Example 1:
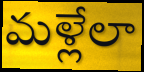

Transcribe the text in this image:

మళ్లేలా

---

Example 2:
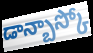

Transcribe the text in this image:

డాన్బాస్కో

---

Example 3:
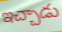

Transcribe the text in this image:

ఇచ్చాడు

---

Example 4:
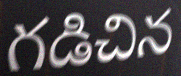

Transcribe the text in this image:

గడిచిన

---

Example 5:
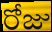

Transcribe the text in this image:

రోజు